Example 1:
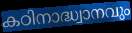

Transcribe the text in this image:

കഠിനാദ്ധ്വാനവും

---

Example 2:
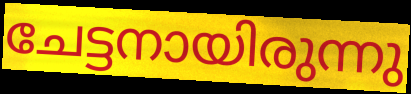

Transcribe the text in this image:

ചേട്ടനായിരുന്നു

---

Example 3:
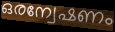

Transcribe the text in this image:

ഒരന്വേഷണം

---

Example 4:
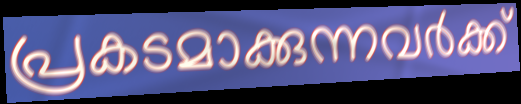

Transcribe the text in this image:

പ്രകടമാക്കുന്നവർക്ക്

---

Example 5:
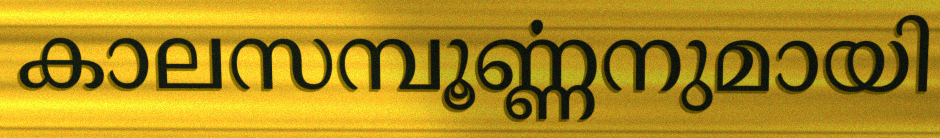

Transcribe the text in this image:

കാലസമ്പൂൎണ്ണനുമായി